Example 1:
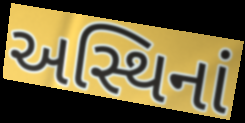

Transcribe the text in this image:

અસ્થિનાં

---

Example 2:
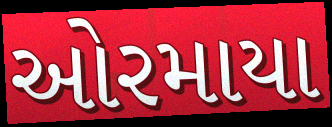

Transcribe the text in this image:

ઓરમાયા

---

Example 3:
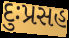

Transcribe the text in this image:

દુઃપ્રસહ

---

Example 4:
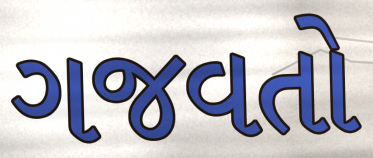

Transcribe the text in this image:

ગજવતો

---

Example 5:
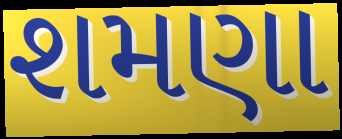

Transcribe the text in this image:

શમણા